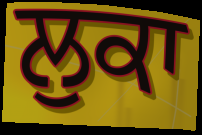
ਲੁਕਾ